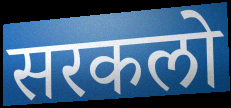
सरकलो